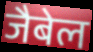
जैबेल